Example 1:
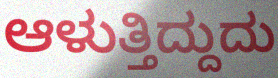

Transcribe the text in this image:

ಆಳುತ್ತಿದ್ದುದು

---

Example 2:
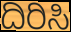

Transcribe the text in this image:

ದಿರಿಸಿ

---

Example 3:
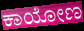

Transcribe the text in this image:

ಕಾಯೋಣ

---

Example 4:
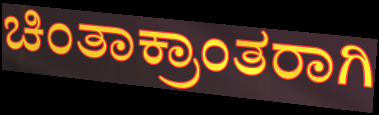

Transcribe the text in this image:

ಚಿಂತಾಕ್ರಾಂತರಾಗಿ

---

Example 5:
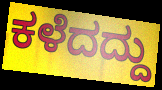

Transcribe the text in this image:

ಕಳೆದದ್ದು